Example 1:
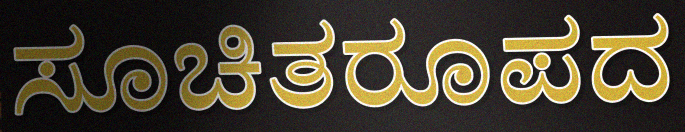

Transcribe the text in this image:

ಸೂಚಿತರೂಪದ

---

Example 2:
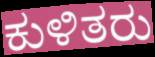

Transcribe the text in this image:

ಕುಳಿತರು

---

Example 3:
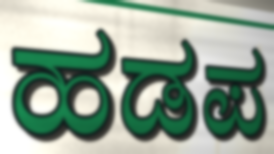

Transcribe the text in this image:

ಹಡಪ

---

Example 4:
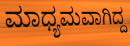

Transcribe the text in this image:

ಮಾಧ್ಯಮವಾಗಿದ್ದ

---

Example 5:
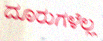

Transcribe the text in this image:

ದೂರುಗಳೆಲ್ಲ